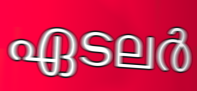
ഏടലർ